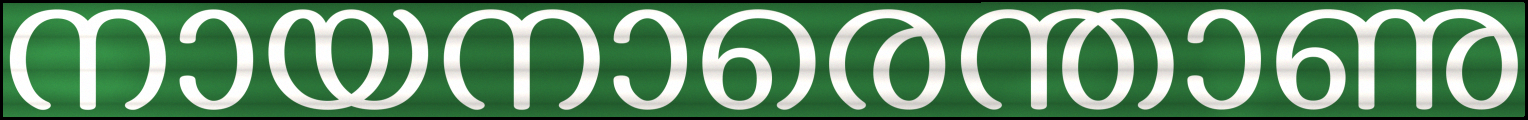
നായനാരെന്താണു